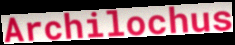
Archilochus